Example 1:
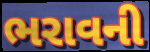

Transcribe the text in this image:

ભરાવની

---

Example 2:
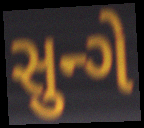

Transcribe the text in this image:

સુન્ગે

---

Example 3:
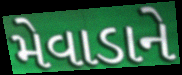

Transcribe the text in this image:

મેવાડાને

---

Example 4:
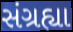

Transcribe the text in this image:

સંગ્રહ્યા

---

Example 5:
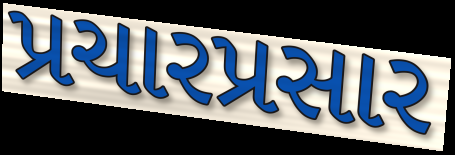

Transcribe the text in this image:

પ્રચારપ્રસાર